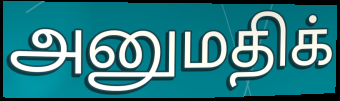
அனுமதிக்